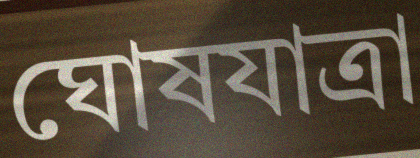
ঘোষযাত্রা